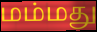
மம்மது